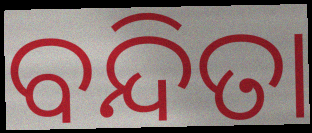
ବନ୍ଦିତା